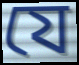
যে